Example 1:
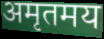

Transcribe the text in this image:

अमृतमय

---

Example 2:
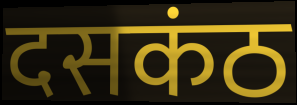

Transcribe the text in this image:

दसकंठ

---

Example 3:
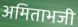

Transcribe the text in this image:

अमिताभजी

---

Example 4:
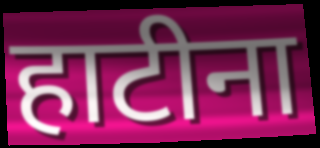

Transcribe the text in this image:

हाटीना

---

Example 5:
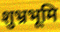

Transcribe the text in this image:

शुभ्रभूमि